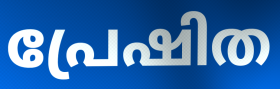
പ്രേഷിത